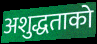
अशुद्धताको